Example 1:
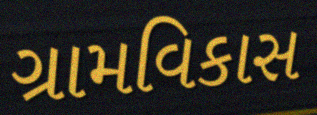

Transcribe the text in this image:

ગ્રામવિકાસ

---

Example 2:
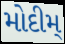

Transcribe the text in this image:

મોદીમ્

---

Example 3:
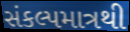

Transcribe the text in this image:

સંકલ્પમાત્રથી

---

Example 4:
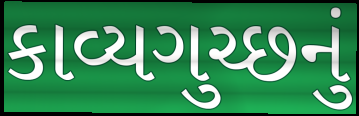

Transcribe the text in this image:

કાવ્યગુચ્છનું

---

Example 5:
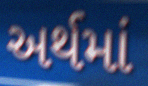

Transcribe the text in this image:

અર્થમાં